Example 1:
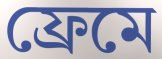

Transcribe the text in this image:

ফ্রেমে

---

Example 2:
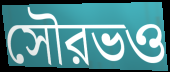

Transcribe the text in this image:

সৌরভও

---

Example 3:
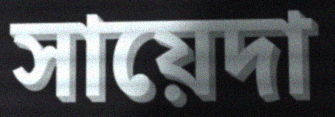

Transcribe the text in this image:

সায়েদা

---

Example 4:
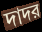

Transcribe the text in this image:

দাদর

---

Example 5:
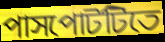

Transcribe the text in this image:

পাসপোর্টটিতে